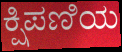
ಕ್ಷಿಪಣಿಯ